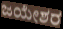
ಜಯೇಶರ